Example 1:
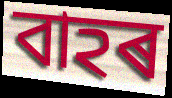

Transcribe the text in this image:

বাহৰ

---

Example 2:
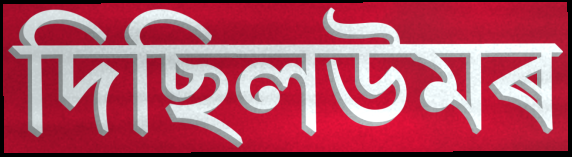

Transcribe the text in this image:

দিছিলউমৰ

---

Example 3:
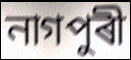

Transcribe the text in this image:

নাগপুৰী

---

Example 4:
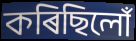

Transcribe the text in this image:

কৰিছিলোঁ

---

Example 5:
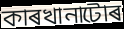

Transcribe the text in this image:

কাৰখানাটোৰ